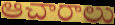
ఆచారాలు